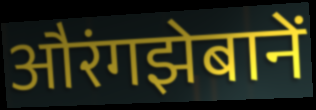
औरंगझेबानें